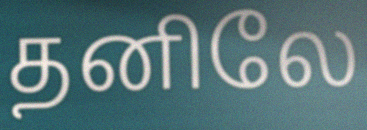
தனிலே